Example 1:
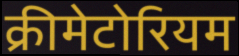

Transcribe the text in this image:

क्रीमेटोरियम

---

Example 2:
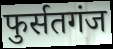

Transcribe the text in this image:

फुर्सतगंज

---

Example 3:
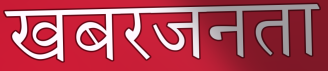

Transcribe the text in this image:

खबरजनता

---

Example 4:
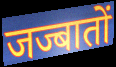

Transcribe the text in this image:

जज्बातों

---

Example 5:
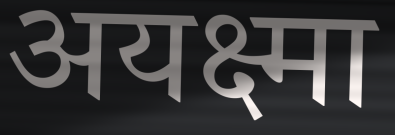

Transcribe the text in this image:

अयक्ष्मा